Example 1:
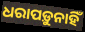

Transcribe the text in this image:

ଧରାପଡ଼ୁନାହିଁ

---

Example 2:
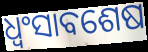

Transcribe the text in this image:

ଧ୍ଵଂସାବଶେଷ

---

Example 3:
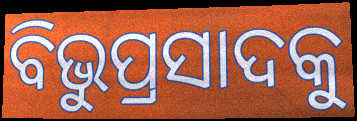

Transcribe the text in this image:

ବିଭୁପ୍ରସାଦକୁ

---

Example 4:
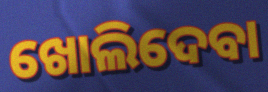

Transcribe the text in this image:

ଖୋଲିଦେବା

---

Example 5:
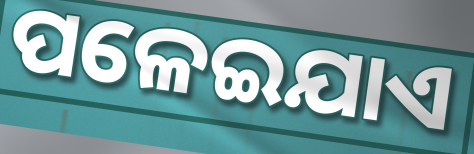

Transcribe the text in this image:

ପଳେଇଯାଏ